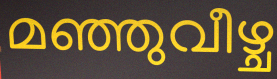
മഞ്ഞുവീഴ്ച